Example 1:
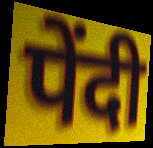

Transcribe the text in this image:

पेंदी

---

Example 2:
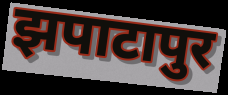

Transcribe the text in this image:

झपाटापुर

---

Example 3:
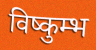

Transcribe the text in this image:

विष्कुम्भ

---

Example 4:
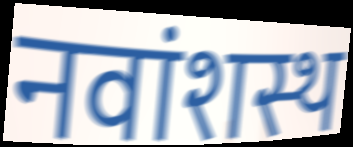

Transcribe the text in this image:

नवांशस्थ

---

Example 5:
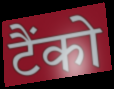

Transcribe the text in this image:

टैंको